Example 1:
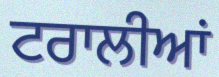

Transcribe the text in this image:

ਟਰਾਲੀਆਂ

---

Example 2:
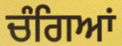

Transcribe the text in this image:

ਚੰਗਿਆਂ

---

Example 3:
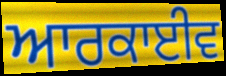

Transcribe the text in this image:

ਆਰਕਾਈਵ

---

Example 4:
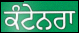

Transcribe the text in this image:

ਕੰਟੇਨਰਾ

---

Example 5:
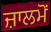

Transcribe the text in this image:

ਜ਼ਾਲਮੋਂ